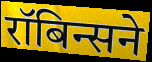
रॉबिन्सने